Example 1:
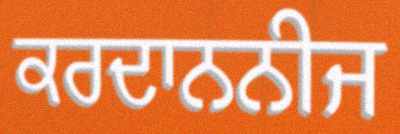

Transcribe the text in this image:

ਕਰਦਾਨਨੀਜ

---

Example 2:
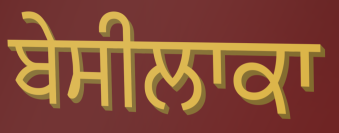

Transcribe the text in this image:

ਬੇਸੀਲਾਕਾ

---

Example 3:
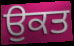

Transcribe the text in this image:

ਉੁਕਤ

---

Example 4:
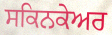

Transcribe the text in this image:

ਸਕਿਨਕੇਅਰ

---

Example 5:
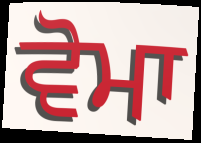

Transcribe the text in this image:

ਵੋਮਾ